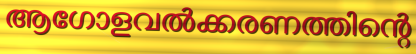
ആഗോളവൽക്കരണത്തിന്റെ